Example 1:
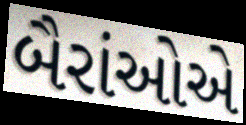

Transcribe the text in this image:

બૈરાંઓએ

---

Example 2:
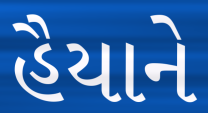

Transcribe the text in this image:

હૈયાને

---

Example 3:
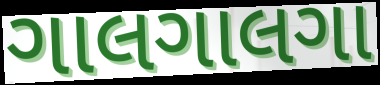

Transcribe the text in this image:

ગાલગાલગા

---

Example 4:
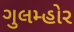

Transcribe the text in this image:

ગુલમ્હોર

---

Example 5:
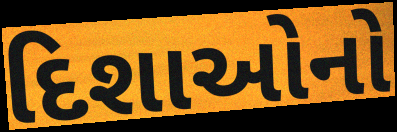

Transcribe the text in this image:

દિશાઓનો